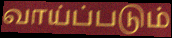
வாய்ப்படும்